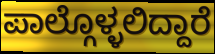
ಪಾಲ್ಗೊಳ್ಳಲಿದ್ದಾರೆ